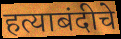
हत्याबंदीचे